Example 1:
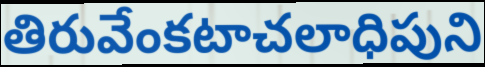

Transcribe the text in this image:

తిరువేంకటాచలాధిపుని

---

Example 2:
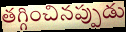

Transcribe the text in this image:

తగ్గించినప్పుడు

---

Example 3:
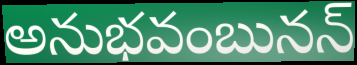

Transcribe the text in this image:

అనుభవంబునన్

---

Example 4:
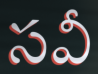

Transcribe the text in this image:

సవీ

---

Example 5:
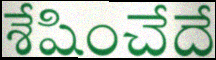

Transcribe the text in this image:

శేషించేదే